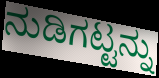
ನುಡಿಗಟ್ಟನ್ನು